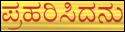
ಪ್ರಹರಿಸಿದನು